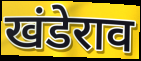
खंडेराव